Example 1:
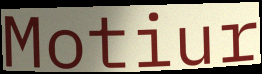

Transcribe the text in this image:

Motiur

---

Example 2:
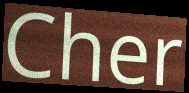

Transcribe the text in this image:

Cher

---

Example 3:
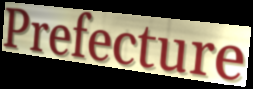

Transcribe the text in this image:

Prefecture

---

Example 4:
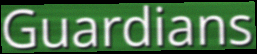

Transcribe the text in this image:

Guardians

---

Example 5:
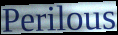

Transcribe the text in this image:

Perilous